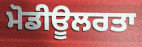
ਮੋਡੀਊਲਰਤਾ